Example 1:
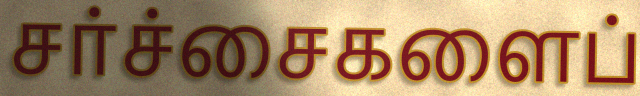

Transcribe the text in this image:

சர்ச்சைகளைப்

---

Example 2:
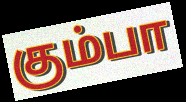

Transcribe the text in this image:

கும்பா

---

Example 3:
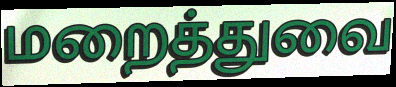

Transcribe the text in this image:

மறைத்துவை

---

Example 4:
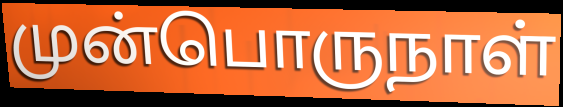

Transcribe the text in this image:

முன்பொருநாள்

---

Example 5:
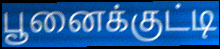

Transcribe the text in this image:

பூனைக்குட்டி